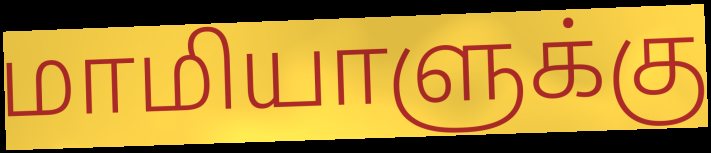
மாமியாளுக்கு